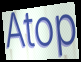
Atop